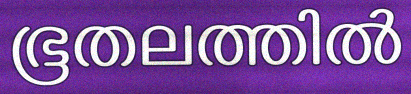
ഭൂതലത്തിൽ